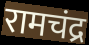
रामचंद्र